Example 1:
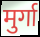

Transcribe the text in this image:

मुर्गा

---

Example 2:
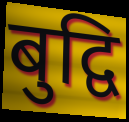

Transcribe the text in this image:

बुद्वि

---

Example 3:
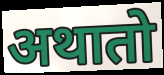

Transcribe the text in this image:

अथातो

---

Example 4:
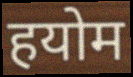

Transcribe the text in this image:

हयोम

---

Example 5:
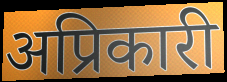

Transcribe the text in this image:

अप्रिकारी